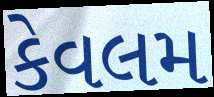
કેવલમ